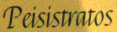
Peisistratos